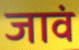
जावं